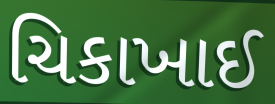
ચિકાખાઈ